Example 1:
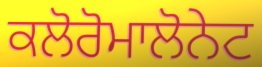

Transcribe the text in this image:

ਕਲੋਰੋਮਾਲੋਨੇਟ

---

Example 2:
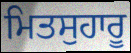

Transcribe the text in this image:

ਮਿਤਸੁਹਾਰੂ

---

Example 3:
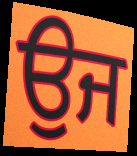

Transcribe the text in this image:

ਉਜ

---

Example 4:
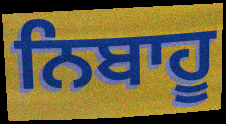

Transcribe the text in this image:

ਨਿਬਾਹੂ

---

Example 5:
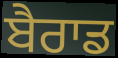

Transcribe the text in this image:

ਬੈਰਾਡ